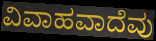
ವಿವಾಹವಾದೆವು